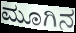
ಮೂಗಿನ